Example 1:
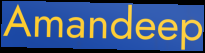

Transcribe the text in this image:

Amandeep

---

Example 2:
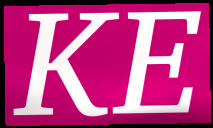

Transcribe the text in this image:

KE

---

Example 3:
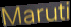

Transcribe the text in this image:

Maruti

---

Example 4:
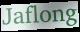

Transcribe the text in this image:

Jaflong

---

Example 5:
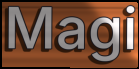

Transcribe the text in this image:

Magi